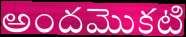
అందమొకటి